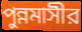
পুন্নমাসীর